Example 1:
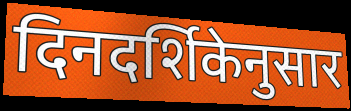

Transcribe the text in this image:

दिनदर्शिकेनुसार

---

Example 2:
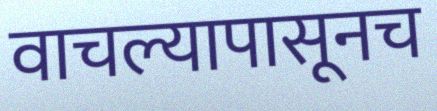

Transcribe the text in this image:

वाचल्यापासूनच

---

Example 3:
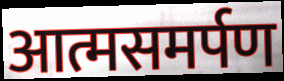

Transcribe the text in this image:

आत्मसमर्पण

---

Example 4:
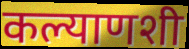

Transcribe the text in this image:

कल्याणशी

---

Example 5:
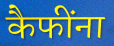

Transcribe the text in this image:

कैफींना